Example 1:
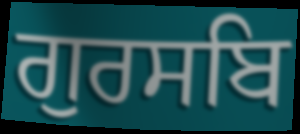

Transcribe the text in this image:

ਗੁਰਸਬਿ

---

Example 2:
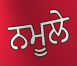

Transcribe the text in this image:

ਨਮੂਲੇ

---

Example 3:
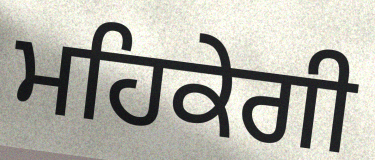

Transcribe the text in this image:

ਮਹਿਕੇਗੀ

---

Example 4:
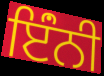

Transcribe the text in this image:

ਇੰਂਨੀ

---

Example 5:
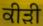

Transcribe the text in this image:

ਕੀੜੀ